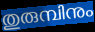
തുരുമ്പിനും